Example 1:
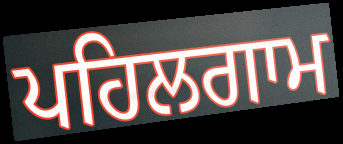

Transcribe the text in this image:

ਪਹਿਲਗਾਮ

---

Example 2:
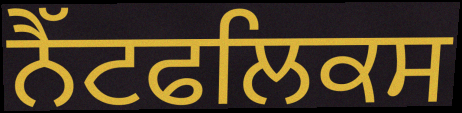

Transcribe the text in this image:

ਨੈੱਟਫਲਿਕਸ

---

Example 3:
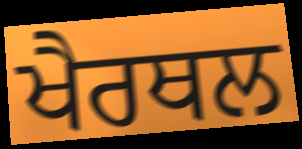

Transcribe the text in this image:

ਖੈਰਥਲ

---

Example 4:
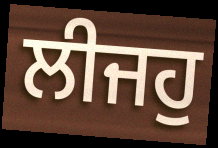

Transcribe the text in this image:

ਲੀਜਹੁ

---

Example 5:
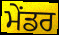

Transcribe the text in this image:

ਮੇਂਡਰ